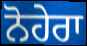
ਨੋਹੇਰਾ